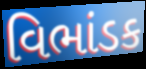
વિભાંડક